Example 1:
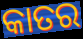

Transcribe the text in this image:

କାତର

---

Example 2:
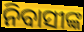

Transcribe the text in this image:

ନିବାସୀଙ୍କ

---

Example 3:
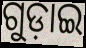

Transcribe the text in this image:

ଗୁଡ଼ାଇ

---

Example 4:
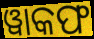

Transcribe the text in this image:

ୱାକଫ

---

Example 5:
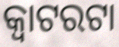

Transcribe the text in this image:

କ୍ଵାଟରଟା